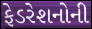
ફેડરેશનોની